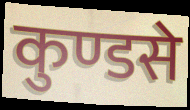
कुण्डसे